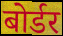
बोर्डर